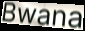
Bwana